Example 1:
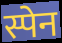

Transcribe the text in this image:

स्पेन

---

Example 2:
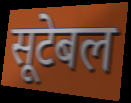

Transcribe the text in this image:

सूटेबल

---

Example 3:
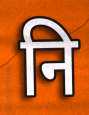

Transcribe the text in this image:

नि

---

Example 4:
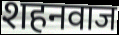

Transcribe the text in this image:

शहनवाज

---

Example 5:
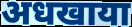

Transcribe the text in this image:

अधखाया